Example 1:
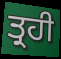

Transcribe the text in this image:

ਤ੍ਰਹੀ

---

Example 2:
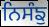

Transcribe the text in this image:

ਨਿਸੰਙੁ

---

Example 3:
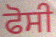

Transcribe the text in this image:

ਫੋਸੀ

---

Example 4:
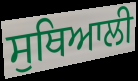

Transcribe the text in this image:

ਸੁਥਿਆਲੀ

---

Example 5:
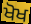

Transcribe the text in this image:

ਖੋਖ